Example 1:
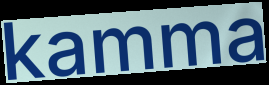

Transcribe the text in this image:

kamma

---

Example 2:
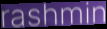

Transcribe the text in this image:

rashmin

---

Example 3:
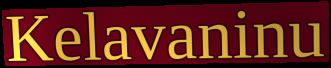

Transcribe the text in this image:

Kelavaninu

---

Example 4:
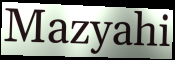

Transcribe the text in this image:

Mazyahi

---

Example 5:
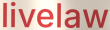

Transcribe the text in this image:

livelaw